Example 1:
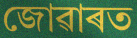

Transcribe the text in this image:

জোৱাৰত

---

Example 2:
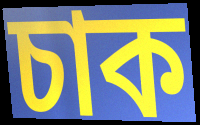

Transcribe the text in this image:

চাক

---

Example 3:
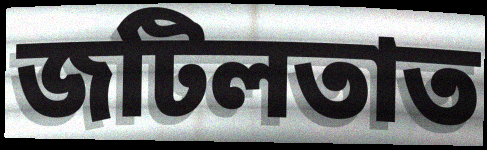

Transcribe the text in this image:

জটিলতাত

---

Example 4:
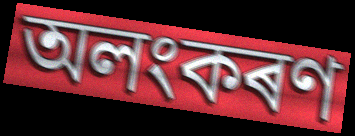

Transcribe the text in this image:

অলংকৰণ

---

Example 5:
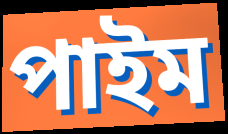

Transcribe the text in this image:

পাইম